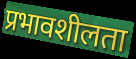
प्रभावशीलता